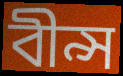
বীন্স